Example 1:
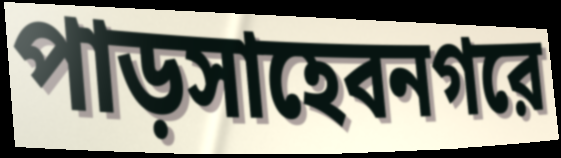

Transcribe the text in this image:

পাড়সাহেবনগরে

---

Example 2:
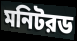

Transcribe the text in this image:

মনিটরড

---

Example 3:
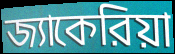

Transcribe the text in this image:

জ্যাকেরিয়া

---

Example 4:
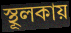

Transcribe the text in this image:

স্থূলকায়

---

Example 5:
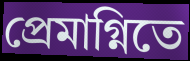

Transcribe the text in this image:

প্রেমাগ্নিতে